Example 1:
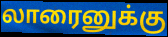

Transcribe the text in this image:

லாரைனுக்கு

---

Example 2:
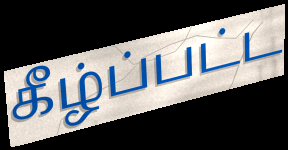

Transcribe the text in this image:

கீழ்ப்பட்ட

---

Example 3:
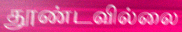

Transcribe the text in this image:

தூண்டவில்லை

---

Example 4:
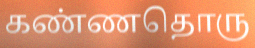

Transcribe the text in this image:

கண்ணதொரு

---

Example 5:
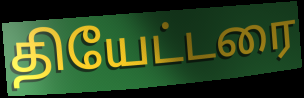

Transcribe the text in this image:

தியேட்டரை